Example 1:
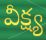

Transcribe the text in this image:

వీక్ష్య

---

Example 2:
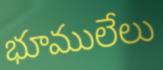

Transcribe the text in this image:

భూములేలు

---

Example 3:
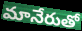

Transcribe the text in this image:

మానేరుతో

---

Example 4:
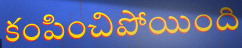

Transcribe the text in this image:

కంపించిపోయింది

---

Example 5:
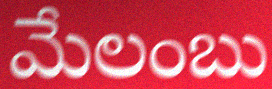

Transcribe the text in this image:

మేలంబు